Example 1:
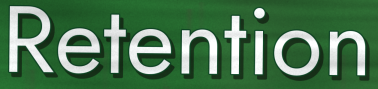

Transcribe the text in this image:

Retention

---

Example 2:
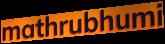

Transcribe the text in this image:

mathrubhumi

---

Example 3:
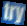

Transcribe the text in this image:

try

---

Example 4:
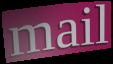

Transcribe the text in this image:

mail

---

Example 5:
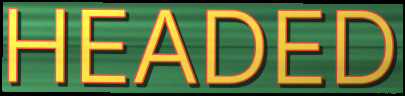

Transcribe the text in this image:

HEADED